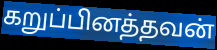
கறுப்பினத்தவன்